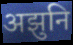
अझुनि